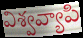
విశ్వవ్యాపి